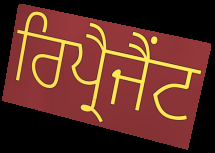
ਰਿਪ੍ਰੈਜੈਂਟ